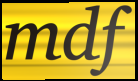
mdf